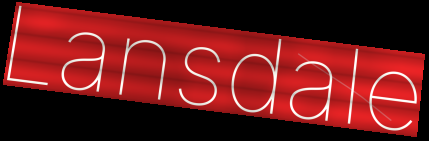
Lansdale